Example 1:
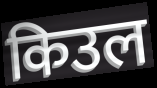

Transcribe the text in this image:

किउल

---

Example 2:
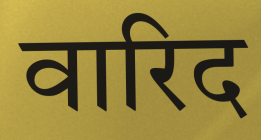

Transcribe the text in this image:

वारिद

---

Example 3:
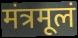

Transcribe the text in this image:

मंत्रमूलं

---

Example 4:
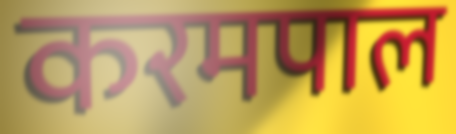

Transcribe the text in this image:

करमपाल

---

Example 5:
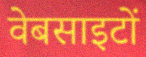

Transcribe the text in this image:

वेबसाइटों